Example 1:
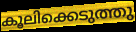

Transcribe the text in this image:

കൂലിക്കെടുത്തു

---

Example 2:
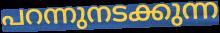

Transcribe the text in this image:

പറന്നുനടക്കുന്ന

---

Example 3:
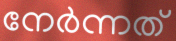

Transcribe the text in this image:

നേർന്നത്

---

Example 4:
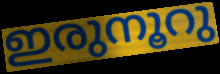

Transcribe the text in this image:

ഇരുനൂറു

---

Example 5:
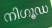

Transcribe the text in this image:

നിഗൂഡ